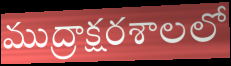
ముద్రాక్షరశాలలో